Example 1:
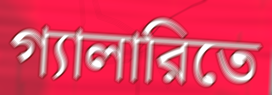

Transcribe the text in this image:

গ্যালারিতে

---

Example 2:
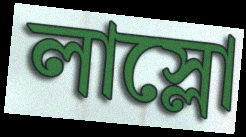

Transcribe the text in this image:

লাস্লো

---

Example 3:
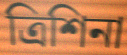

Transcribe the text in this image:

ত্রিশিনা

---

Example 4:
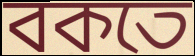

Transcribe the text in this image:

বকতে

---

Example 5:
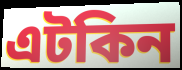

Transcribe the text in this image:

এটকিন